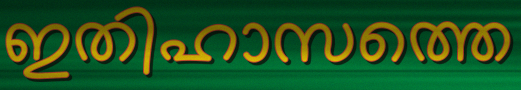
ഇതിഹാസത്തെ